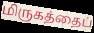
மிருகத்தைப்